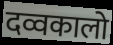
दव्वकालो